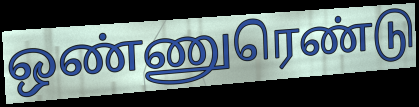
ஒண்ணுரெண்டு